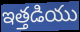
ఇత్తడియు